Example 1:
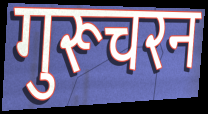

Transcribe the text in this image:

गुरूचरन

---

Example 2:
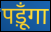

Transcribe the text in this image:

पड़ूँगा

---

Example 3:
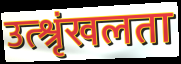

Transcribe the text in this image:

उत्श्रृंखलता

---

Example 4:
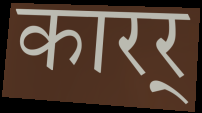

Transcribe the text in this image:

कारर्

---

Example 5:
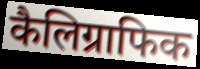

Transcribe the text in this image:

कैलिग्राफिक